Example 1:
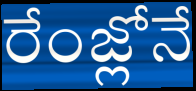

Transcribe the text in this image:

రేంజ్లోనే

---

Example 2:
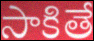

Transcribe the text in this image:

సాకితే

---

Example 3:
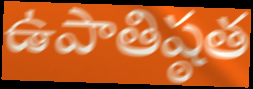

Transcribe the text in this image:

ఉపాతిష్ఠత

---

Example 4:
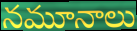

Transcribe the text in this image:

నమూనాలు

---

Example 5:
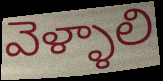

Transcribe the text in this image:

వెళ్ళాలి